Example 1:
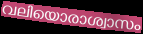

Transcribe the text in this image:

വലിയൊരാശ്വാസം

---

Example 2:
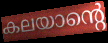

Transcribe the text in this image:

കലയാന്റെ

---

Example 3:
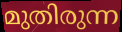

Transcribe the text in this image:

മുതിരുന്ന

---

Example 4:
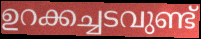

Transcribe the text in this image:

ഉറക്കച്ചടവുണ്ട്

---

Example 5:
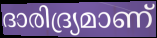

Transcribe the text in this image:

ദാരിദ്ര്യമാണ്